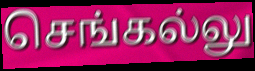
செங்கல்லு